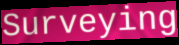
Surveying